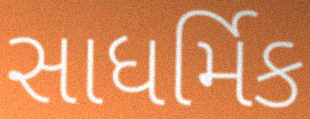
સાધર્મિક